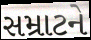
સમ્રાટને